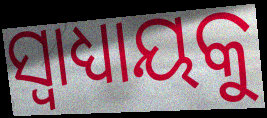
ସ୍ୱାଧ୍ୟାୟକୁ